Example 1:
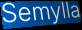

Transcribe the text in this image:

Semylla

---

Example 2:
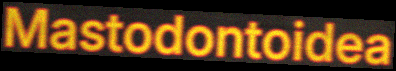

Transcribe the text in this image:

Mastodontoidea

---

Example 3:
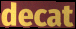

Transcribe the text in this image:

decat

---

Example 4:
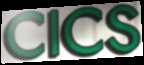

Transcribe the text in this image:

CICS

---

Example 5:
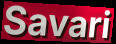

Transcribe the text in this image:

Savari